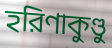
হরিণাকুণ্ডু